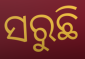
ସରୁଛି